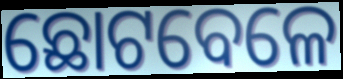
ଛୋଟବେଳେ